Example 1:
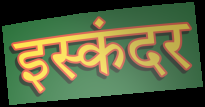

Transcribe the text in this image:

इस्कंदर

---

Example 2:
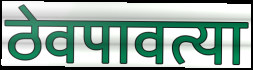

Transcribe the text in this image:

ठेवपावत्या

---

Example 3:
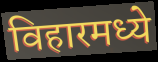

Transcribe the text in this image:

विहारमध्ये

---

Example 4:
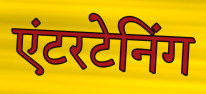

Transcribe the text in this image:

एंटरटेनिंग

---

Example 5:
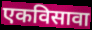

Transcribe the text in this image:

एकविसावा